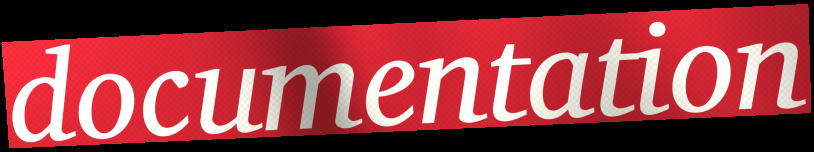
documentation